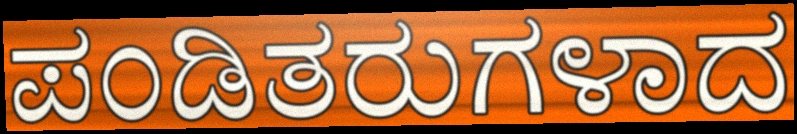
ಪಂಡಿತರುಗಳಾದ